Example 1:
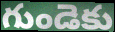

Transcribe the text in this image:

గుండెకు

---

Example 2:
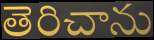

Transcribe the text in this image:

తెరిచాను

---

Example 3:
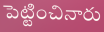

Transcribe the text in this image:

పెట్టించినారు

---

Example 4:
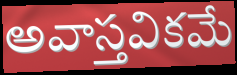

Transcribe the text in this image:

అవాస్తవికమే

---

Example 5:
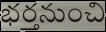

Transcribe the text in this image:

భర్తనుంచి